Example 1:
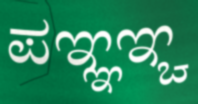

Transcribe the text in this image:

ಪಞ್ಞಞ್ಚ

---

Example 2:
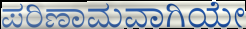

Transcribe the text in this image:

ಪರಿಣಾಮವಾಗಿಯೇ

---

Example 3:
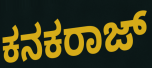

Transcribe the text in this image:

ಕನಕರಾಜ್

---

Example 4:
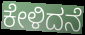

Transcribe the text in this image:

ಕೇಳಿದನೆ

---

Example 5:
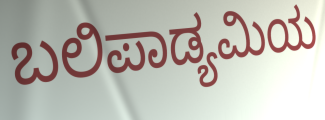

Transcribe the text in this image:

ಬಲಿಪಾಡ್ಯಮಿಯ